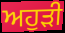
ਅਹੁੜੀ